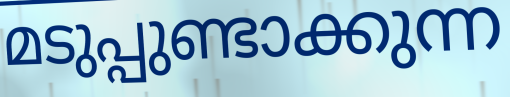
മടുപ്പുണ്ടാക്കുന്ന